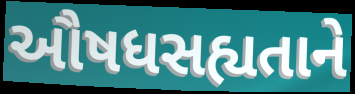
ઔષધસહ્યતાને